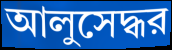
আলুসেদ্ধর